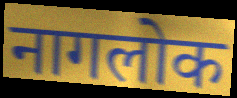
नागलोक